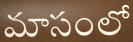
మాసంలో